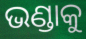
ଭଣ୍ଡାକୁ